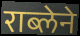
राब्लेने